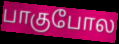
பாகுபோல